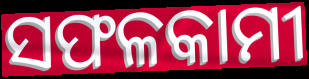
ସଫଳକାମୀ